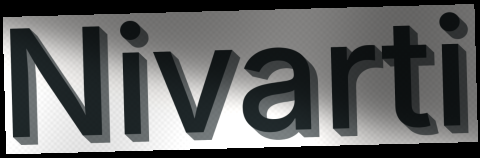
Nivarti